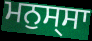
ਮਨੁਸ੍ਸਾ